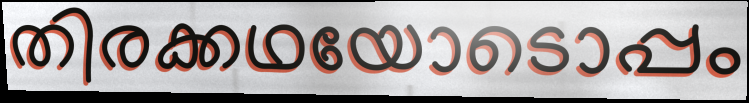
തിരക്കഥയോടൊപ്പം